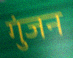
गुंजन